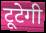
टूटेगी